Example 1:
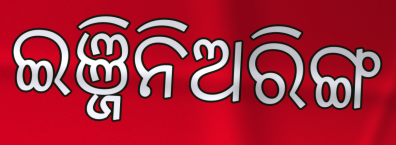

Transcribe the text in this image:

ଇଞ୍ଜିନିଅରିଙ୍ଗ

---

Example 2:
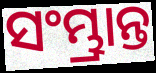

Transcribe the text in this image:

ସଂମ୍ଭ୍ରାନ୍ତ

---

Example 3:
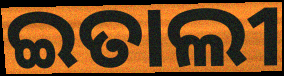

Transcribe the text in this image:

ଇତାଲୀ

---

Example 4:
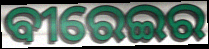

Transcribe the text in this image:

ବୀରେଇର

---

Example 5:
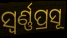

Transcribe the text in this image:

ସ୍ଵର୍ଣ୍ଣପ୍ରସୂ